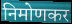
निमोणकर